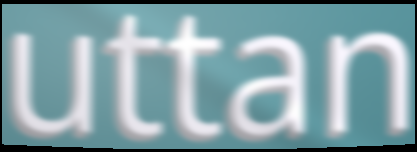
uttan